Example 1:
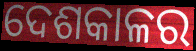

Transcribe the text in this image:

ଦେଶକାଳର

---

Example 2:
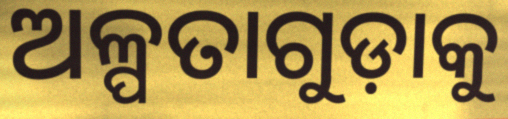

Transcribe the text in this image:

ଅଳ୍ପତାଗୁଡ଼ାକୁ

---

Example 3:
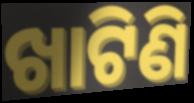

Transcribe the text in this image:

ଖାଟିଣି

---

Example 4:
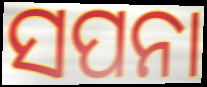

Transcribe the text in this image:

ସପନା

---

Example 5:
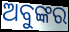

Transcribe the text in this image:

ଅବୁଙ୍କର